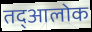
तद्आलोक